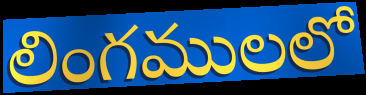
లింగములలో